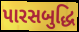
પારસબુદ્ધિ